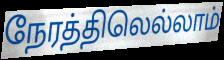
நேரத்திலெல்லாம்